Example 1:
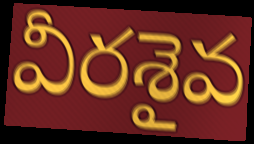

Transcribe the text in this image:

వీరశైవ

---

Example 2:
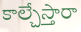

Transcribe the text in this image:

కాల్చేస్తారా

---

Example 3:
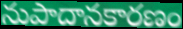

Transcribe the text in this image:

నుపాదానకారణం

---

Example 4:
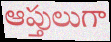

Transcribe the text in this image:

ఆప్తులుగా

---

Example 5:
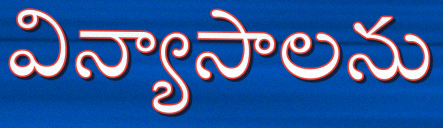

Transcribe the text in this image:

విన్యాసాలను